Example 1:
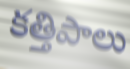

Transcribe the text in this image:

కత్తిపాలు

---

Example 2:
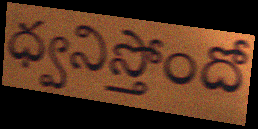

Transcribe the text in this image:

ధ్వనిస్తోందో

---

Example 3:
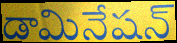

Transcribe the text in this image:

డామినేషన్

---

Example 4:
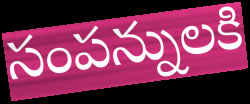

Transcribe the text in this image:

సంపన్నులకి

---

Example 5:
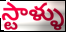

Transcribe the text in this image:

స్టాళ్ళు